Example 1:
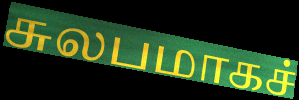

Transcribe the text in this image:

சுலபமாகச்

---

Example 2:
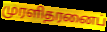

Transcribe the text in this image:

முரளிதரனைப்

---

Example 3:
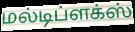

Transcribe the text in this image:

மல்டிப்ளக்ஸ்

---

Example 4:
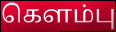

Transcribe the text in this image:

கௌம்பு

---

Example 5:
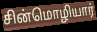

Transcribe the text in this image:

சின்மொழியார்